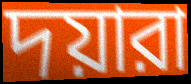
দয়ারা